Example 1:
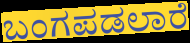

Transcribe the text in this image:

ಬಂಗಪಡಲಾರೆ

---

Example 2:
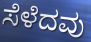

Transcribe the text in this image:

ಸೆಳೆದವು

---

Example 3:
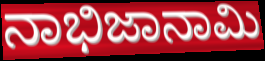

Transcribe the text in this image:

ನಾಭಿಜಾನಾಮಿ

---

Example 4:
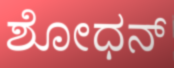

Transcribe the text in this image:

ಶೋಧನ್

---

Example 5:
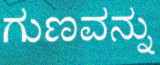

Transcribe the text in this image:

ಗುಣವನ್ನು